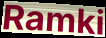
Ramki